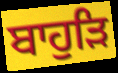
ਬਾਹੁੜਿ